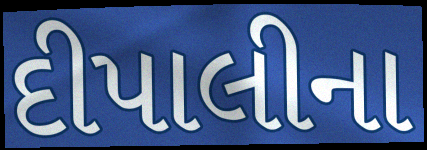
દીપાલીના